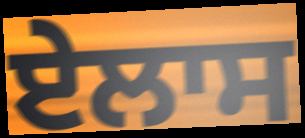
ਏਲਾਸ